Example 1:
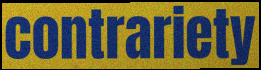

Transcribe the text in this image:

contrariety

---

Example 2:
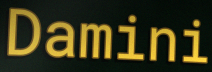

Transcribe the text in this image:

Damini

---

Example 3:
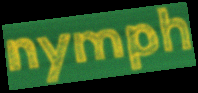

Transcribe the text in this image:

nymph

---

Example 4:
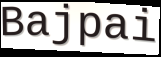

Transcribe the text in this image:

Bajpai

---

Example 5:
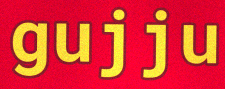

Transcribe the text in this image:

gujju